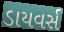
ડાયવર્સ